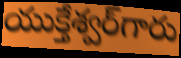
యుక్తేశ్వర్‌గారు